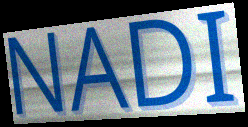
NADI